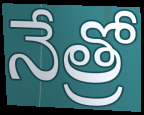
నేత్రో